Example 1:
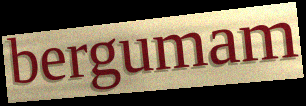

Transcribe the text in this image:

bergumam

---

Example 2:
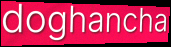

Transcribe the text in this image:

doghancha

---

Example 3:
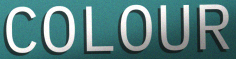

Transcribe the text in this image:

COLOUR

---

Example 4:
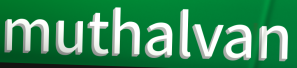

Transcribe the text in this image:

muthalvan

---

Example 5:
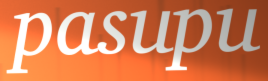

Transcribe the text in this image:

pasupu